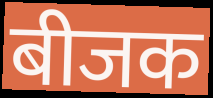
बीजक